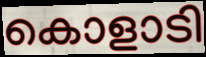
കൊളാടി